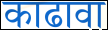
काढावा